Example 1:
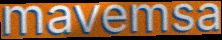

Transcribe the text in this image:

mavemsa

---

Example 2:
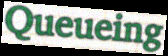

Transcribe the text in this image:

Queueing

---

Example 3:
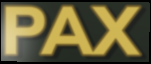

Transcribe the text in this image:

PAX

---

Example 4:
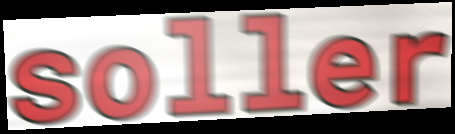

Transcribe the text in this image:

soller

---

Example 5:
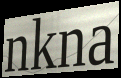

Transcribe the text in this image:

nkna